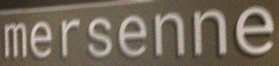
mersenne